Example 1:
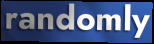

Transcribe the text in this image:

randomly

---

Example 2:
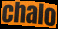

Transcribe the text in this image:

chalo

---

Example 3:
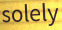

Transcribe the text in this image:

solely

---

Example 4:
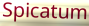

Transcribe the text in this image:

Spicatum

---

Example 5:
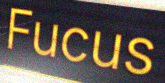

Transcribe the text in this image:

Fucus